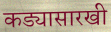
कड्यासारखी